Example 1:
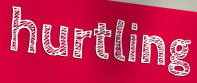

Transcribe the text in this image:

hurtling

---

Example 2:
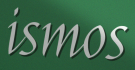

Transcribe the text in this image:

ismos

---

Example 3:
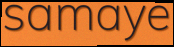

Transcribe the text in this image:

samaye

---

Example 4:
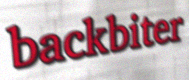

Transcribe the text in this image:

backbiter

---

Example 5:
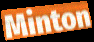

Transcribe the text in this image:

Minton